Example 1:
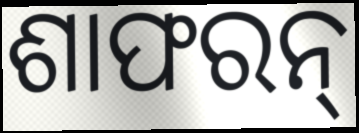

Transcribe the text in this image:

ଶାଫରନ୍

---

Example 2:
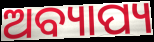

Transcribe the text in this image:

ଅବ୍ୟାପ୍ୟ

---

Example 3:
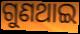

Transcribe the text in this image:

ଗୁଣଥାଇ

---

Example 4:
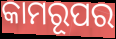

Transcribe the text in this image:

କାମରୂପର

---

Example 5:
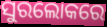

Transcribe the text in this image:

ସୁରଲୋକରେ